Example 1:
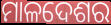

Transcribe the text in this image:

ମାଳଦେଶର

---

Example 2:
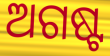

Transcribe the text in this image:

ଅଗଷ୍ଟ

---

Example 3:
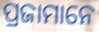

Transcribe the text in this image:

ପ୍ରଜାମାନେ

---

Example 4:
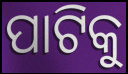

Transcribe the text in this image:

ପାଟିକୁ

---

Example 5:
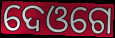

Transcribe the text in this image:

ଦେଓଗେ